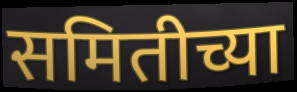
समितीच्‍या